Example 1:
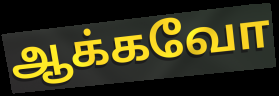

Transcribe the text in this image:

ஆக்கவோ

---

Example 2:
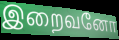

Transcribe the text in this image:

இறைவனோ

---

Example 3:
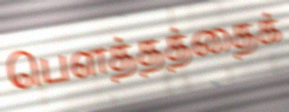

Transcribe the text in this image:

பௌத்தத்தைக்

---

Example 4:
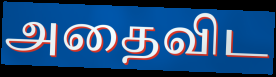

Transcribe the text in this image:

அதைவிட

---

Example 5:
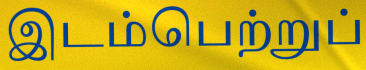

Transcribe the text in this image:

இடம்பெற்றுப்